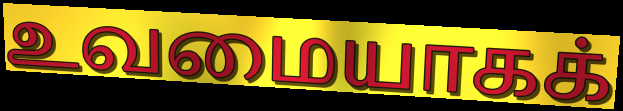
உவமையாகக்